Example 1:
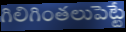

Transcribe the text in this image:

గిలిగింతలుపెట్టే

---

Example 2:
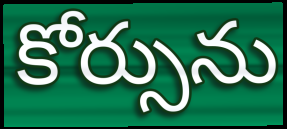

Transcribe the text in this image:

కోర్సును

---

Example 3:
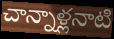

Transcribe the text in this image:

చాన్నాళ్లనాటి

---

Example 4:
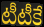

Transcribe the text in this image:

టీటీకే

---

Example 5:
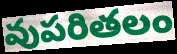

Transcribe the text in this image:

వుపరితలం